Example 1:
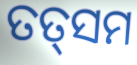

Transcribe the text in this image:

ତତ୍‌ସମ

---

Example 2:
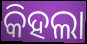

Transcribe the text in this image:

କିହଲା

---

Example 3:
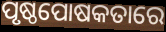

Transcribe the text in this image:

ପୃଷ୍ଠପୋଷକତାରେ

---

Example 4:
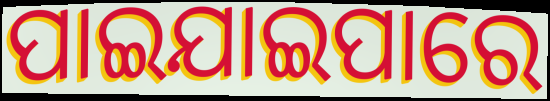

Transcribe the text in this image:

ପାଇଯାଇପାରେ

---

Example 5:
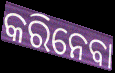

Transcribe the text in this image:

କରିନେବା